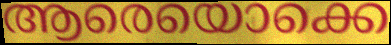
ആരെയൊക്കെ